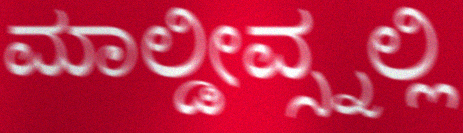
ಮಾಲ್ಡೀವ್ಸ್ನಲ್ಲಿ